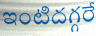
ఇంటిదగ్గరే